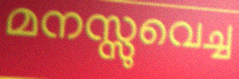
മനസ്സുവെച്ച